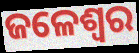
ଜଳେଶ୍ବର